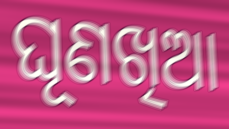
ଘୂଣଖିଆ